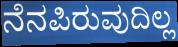
ನೆನಪಿರುವುದಿಲ್ಲ